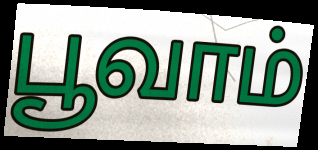
பூவாம்